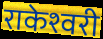
राकेश्वरी